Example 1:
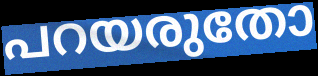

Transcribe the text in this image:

പറയരുതോ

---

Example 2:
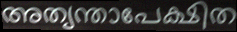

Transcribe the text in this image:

അത്യന്താപേക്ഷിത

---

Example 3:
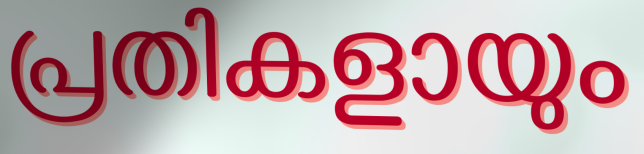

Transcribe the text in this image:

പ്രതികളായും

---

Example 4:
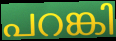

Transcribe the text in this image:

പറങ്കി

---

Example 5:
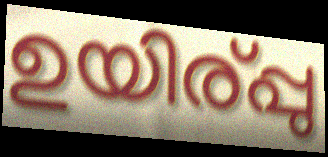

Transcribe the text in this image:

ഉയിര്പ്പു